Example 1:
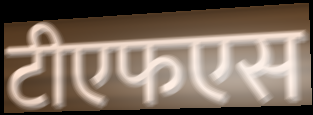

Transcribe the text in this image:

टीएफएस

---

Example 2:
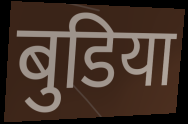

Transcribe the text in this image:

बुडिया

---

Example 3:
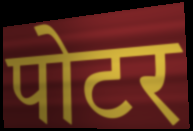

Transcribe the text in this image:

पोटर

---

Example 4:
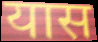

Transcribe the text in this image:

यास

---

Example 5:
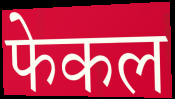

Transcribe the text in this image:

फेकल